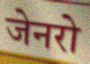
जेनरो